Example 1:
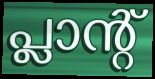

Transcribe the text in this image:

പ്ലാന്റ്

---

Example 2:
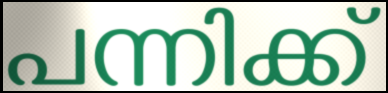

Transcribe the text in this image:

പന്നിക്ക്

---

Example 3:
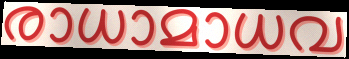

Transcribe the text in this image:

രാധാമാധവ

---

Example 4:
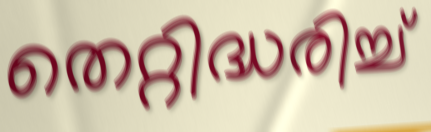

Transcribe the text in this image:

തെറ്റിദ്ധരിച്ച്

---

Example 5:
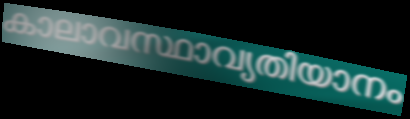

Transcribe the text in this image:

കാലാവസ്ഥാവ്യതിയാനം